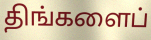
திங்களைப்